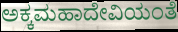
ಅಕ್ಕಮಹಾದೇವಿಯಂತೆ